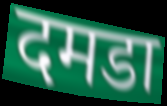
दमडा